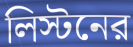
লিস্টনের